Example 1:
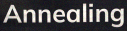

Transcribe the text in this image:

Annealing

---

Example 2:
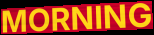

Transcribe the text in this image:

MORNING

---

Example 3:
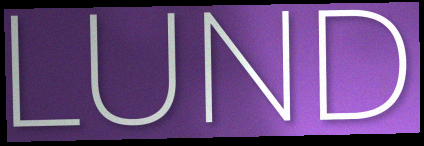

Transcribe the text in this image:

LUND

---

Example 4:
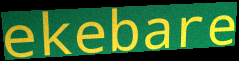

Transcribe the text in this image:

ekebare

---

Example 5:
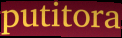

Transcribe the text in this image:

putitora